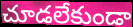
చూడలేకుండా